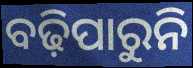
ବଢ଼ିପାରୁନି